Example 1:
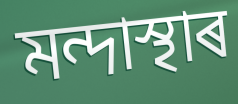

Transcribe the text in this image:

মন্দাস্থাৰ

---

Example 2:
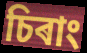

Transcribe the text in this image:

চিৰাং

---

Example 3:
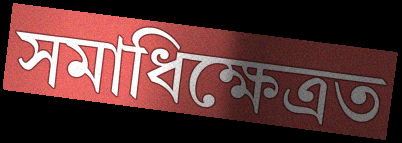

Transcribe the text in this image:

সমাধিক্ষেত্ৰত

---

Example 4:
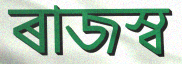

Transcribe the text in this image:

ৰাজস্ব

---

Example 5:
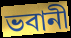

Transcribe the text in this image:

ভবানী